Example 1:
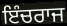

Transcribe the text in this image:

ਇੰਚਰਾਜ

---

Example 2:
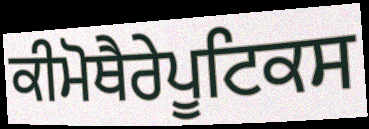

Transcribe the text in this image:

ਕੀਮੋਥੈਰੇਪੂਟਿਕਸ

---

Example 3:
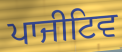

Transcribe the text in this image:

ਪਾਜੀਟਿਵ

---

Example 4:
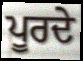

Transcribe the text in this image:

ਪੂਰਦੇ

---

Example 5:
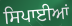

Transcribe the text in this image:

ਸਿਪਾਈਆਂ